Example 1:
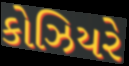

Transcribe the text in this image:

કોઝિયરે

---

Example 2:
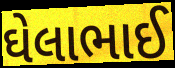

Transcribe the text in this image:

ઘેલાભાઈ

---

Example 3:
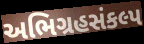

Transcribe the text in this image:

અભિગ્રહસંકલ્પ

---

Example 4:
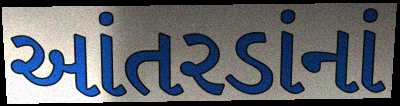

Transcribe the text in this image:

આંતરડાંનાં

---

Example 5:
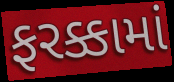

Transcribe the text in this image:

ફરક્કામાં